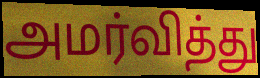
அமர்வித்து